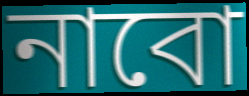
নাবো